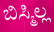
ಬಿಸ್ಮಿಲ್ಲ